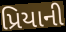
પ્રિયાની